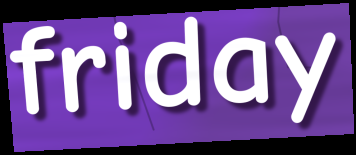
friday